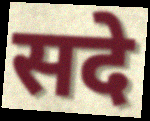
सदे